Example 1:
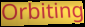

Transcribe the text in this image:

Orbiting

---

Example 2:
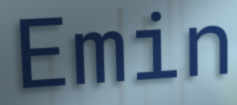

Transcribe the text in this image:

Emin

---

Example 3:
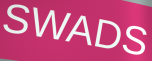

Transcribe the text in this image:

SWADS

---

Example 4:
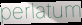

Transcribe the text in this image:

perlatum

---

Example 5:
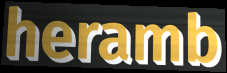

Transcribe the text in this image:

heramb